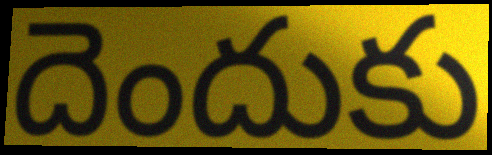
దెందుకు